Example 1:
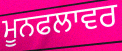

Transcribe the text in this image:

ਮੂਨਫਲਾਵਰ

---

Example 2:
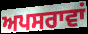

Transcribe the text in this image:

ਅਪਸਰਾਵਾਂ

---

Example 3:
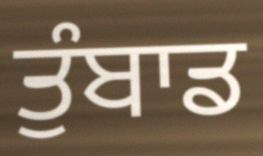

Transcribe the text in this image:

ਤੁੰਬਾਡ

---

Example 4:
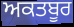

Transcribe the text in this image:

ਅਕਤਬੂਰ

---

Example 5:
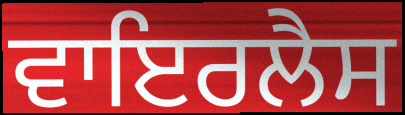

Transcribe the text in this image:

ਵਾਇਰਲੈਸ